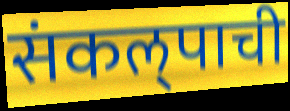
संकल्पाची